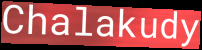
Chalakudy